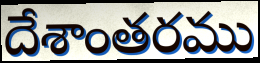
దేశాంతరము